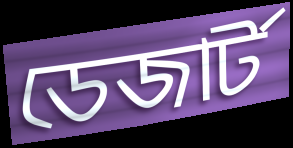
ডেজার্ট